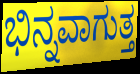
ಭಿನ್ನವಾಗುತ್ತ